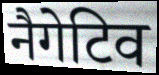
नैगेटिव